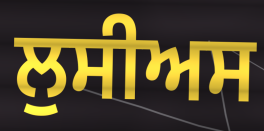
ਲੁਸੀਅਸ